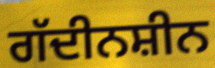
ਗੱਦੀਨਸ਼ੀਨ